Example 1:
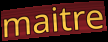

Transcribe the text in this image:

maitre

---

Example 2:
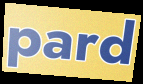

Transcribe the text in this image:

pard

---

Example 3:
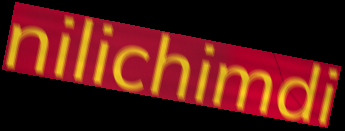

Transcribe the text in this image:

nilichimdi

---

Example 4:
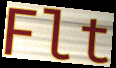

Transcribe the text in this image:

Flt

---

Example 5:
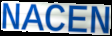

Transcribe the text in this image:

NACEN